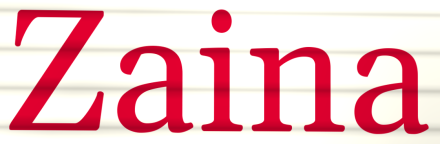
Zaina